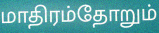
மாதிரம்தோறும்